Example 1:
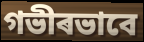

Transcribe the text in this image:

গভীৰভাবে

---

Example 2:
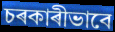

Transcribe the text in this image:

চৰকাৰীভাবে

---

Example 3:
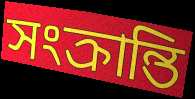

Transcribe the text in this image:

সংক্ৰান্তি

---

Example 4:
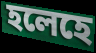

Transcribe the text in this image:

হলেহে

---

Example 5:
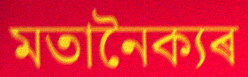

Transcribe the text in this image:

মতানৈক্যৰ